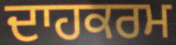
ਦਾਹਕਰਮ